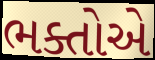
ભક્તોએ